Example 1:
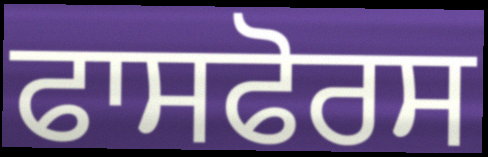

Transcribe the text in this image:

ਫਾਸਫੋਰਸ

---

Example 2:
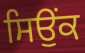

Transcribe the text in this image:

ਸਿਉਂਕ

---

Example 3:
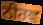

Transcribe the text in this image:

ਨੀਰਵ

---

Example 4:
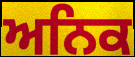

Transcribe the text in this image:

ਅਨਿਕ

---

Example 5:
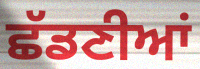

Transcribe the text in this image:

ਛੱਡਣੀਆਂ